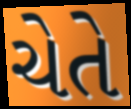
ચેતે